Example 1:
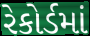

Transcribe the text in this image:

રેકોર્ડમાં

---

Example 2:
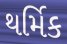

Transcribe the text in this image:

થર્મિક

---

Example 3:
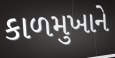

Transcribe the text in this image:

કાળમુખાને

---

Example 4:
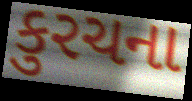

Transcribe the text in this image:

કુરચના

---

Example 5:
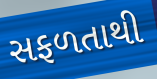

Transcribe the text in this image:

સફળતાથી